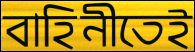
বাহিনীতেই